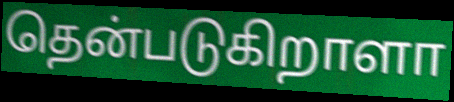
தென்படுகிறாளா